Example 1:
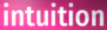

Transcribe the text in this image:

intuition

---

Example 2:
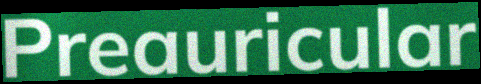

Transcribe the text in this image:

Preauricular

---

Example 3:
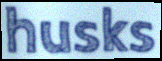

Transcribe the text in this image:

husks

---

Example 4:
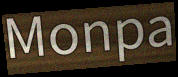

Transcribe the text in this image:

Monpa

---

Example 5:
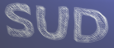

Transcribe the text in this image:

SUD